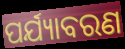
ପର୍ଯ୍ୟାବରଣ